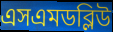
এসএমডব্লিউ